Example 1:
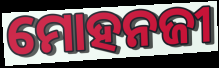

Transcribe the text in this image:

ମୋହନଜୀ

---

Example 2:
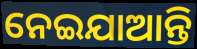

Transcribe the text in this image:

ନେଇଯାଆନ୍ତି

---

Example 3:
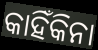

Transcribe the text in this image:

କାହିଁକିନା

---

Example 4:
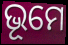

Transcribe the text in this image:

ଭୂମେ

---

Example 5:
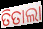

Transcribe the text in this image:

ତିତାଲା